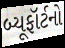
બ્યૂફૉર્ટનો